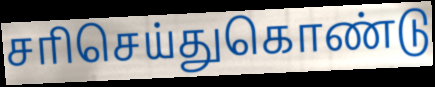
சரிசெய்துகொண்டு